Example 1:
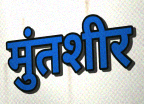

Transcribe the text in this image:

मुंतशीर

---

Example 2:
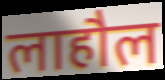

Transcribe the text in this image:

लाहौल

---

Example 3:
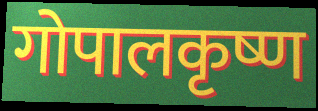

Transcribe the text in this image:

गोपालकृष्‍ण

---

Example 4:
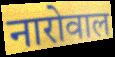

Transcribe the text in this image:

नारोवाल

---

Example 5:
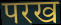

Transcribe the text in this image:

परख